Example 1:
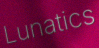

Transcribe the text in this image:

Lunatics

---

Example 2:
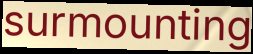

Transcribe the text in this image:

surmounting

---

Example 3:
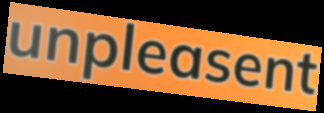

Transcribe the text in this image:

unpleasent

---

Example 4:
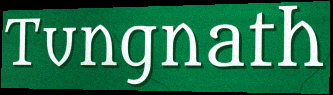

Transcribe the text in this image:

Tungnath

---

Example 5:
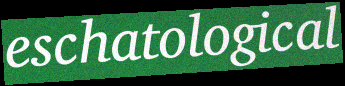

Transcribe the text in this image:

eschatological